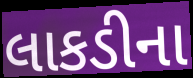
લાકડીના